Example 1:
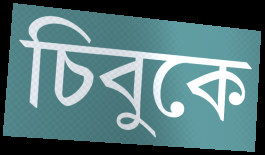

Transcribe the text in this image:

চিবুকে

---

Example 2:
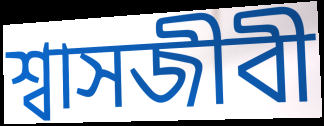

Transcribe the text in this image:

শ্বাসজীবী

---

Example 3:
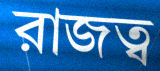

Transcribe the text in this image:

রাজত্ব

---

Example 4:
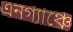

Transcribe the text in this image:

এনগ্যাঞ্চে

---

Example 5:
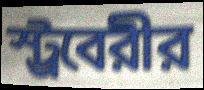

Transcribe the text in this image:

স্ট্রবেরীর